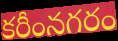
కరీంనగరం